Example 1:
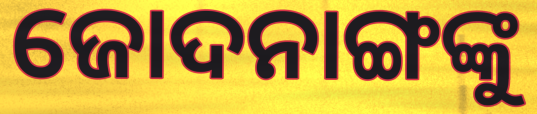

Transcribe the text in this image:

ଜୋଦନାଙ୍ଗଙ୍କୁ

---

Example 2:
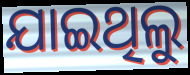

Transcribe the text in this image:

ଯାଇଥିଲୁ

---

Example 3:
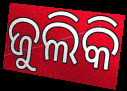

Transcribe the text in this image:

ଜୁଲିକି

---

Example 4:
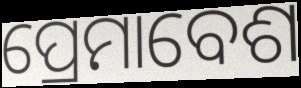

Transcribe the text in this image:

ପ୍ରେମାବେଶ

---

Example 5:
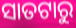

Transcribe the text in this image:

ସାତଟାରୁ